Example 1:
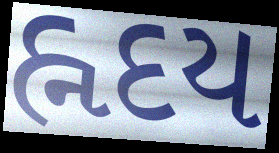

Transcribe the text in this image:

હ્નદય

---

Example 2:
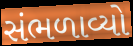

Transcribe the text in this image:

સંભળાવ્યો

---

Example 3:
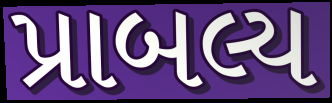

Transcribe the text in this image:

પ્રાબલ્ય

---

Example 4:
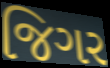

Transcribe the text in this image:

જિગર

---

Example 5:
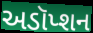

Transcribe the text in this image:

અડૉપ્શન